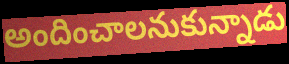
అందించాలనుకున్నాడు